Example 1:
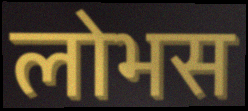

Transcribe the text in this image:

लोभस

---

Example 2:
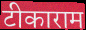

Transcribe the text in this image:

टीकाराम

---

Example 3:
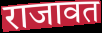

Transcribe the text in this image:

राजावत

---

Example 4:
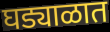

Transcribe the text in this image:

घड्याळात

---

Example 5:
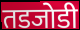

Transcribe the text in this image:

तडजोडी